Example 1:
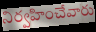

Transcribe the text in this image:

నిర్వహించేవారు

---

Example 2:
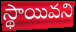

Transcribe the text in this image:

స్థాయివని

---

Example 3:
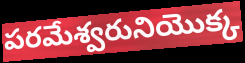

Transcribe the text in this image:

పరమేశ్వరునియొక్క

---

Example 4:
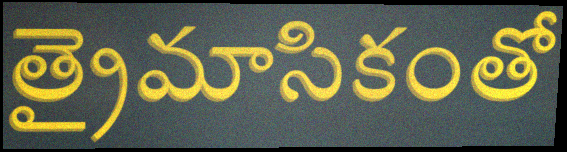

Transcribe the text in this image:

త్రైమాసికంతో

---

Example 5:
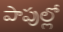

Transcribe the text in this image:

పాపుల్లో